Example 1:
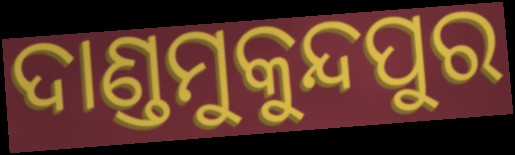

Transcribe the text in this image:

ଦାଣ୍ଡମୁକୁନ୍ଦପୁର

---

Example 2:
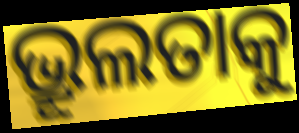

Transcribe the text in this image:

ଭ୍ରୂଲତାକୁ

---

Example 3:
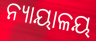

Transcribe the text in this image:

ନ୍ଯାୟାଳୟ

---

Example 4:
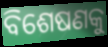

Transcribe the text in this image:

ବିଶେଷଣକୁ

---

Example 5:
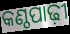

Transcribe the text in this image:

କଣ୍ଠପାଢ଼ୀ